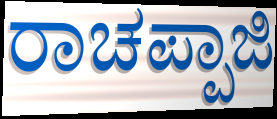
ರಾಚಪ್ಪಾಜಿ